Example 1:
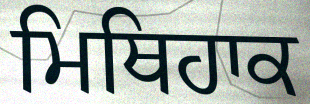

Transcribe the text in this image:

ਮਿਥਿਹਾਕ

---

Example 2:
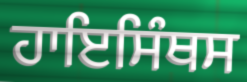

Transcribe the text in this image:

ਹਾਇਸਿੰਥਸ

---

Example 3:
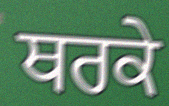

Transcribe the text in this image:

ਥਰਕੇ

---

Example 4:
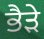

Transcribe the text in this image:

ਭੈਡ਼ੇ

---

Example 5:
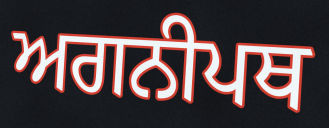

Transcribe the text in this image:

ਅਗਨੀਪਥ